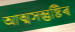
আত্মসন্তুষ্টিৰ